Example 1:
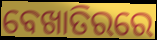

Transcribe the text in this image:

ବେଖାତିରରେ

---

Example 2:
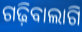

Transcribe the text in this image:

ଗଢ଼ିବାଲାଗି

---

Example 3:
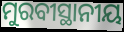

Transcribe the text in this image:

ମୁରବୀସ୍ଥାନୀୟ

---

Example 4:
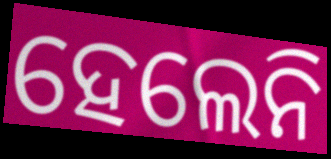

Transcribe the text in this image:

ହେଲେନି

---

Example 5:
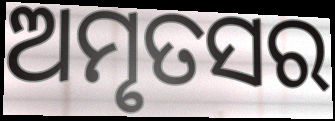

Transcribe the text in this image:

ଅମୃତସର